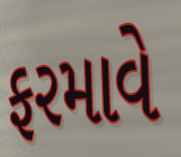
ફરમાવે